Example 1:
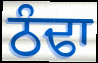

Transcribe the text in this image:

ਠੰਢਾ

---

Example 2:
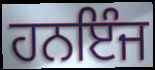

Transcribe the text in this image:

ਹਨਇੰਜ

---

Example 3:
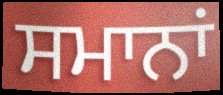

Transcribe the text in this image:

ਸਮਾਨਾਂ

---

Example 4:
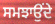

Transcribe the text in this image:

ਸਮਝਾਉਂਦੇ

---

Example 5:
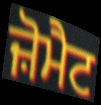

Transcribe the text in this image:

ਜ਼ੋਮੈਟ